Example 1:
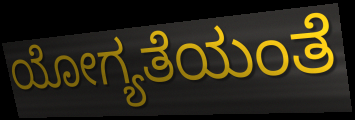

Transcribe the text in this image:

ಯೋಗ್ಯತೆಯಂತೆ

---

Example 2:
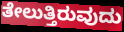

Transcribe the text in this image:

ತೇಲುತ್ತಿರುವುದು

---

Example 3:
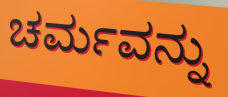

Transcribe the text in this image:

ಚರ್ಮವನ್ನು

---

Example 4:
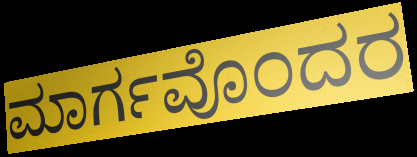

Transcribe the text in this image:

ಮಾರ್ಗವೊಂದರ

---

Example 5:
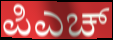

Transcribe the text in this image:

ಪಿಎಚ್